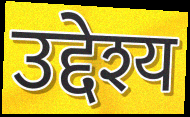
उद्देश्य